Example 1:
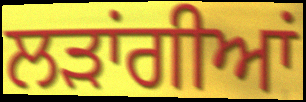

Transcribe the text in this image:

ਲੜਾਂਗੀਆਂ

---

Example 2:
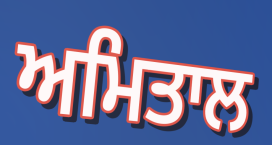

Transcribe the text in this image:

ਅਮਿਤਾਲ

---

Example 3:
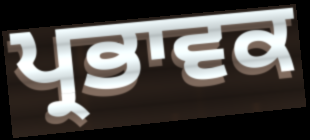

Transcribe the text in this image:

ਪ੍ਰਭਾਵਕ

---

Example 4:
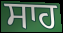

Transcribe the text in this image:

ਸਾਹ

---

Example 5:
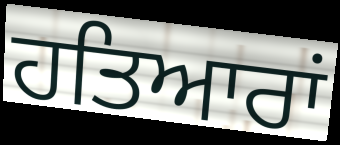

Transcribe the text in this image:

ਹਤਿਆਰਾਂ